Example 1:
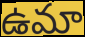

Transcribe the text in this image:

ఉమా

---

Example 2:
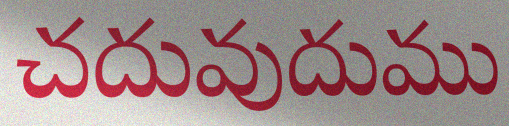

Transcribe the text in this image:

చదువుదుము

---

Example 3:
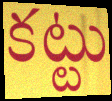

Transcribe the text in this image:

కట్టు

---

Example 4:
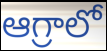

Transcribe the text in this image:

ఆగ్రాలో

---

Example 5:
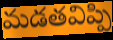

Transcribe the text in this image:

మడతవిప్పి